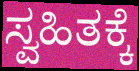
ಸ್ವಹಿತಕ್ಕೆ